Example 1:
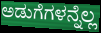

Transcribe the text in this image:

ಅಡುಗೆಗಳನ್ನೆಲ್ಲ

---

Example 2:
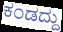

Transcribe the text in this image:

ಕಂಡದ್ದು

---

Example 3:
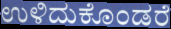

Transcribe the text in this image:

ಉಳಿದುಕೊಂಡರೆ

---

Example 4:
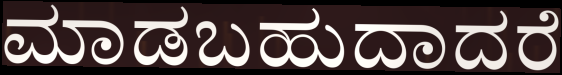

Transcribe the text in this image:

ಮಾಡಬಹುದಾದರೆ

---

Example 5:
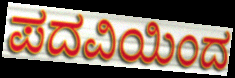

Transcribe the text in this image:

ಪದವಿಯಿಂದ